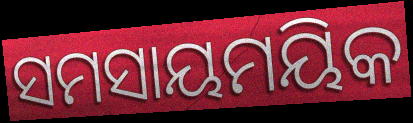
ସମସାୟମୟିକ